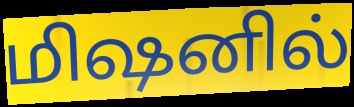
மிஷனில்